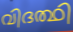
വിദത്ഥി